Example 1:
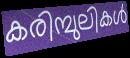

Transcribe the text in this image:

കരിമ്പുലികൾ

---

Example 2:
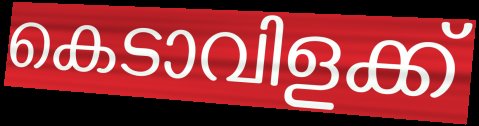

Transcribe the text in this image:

കെടാവിളക്ക്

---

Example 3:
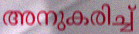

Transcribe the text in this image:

അനുകരിച്ച്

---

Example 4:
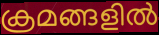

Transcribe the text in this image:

ക്രമങ്ങളിൽ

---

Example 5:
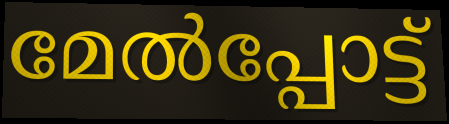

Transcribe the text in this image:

മേൽപ്പോട്ട്